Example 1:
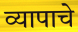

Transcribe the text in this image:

व्यापाचे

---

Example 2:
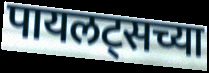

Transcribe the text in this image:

पायलट्सच्या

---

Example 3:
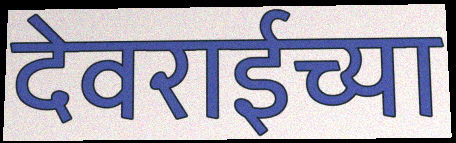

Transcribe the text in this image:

देवराईच्या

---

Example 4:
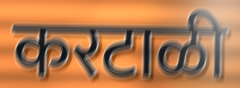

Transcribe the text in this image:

करटाळी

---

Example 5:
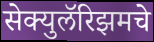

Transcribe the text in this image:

सेक्युलॅरिझमचे